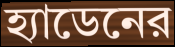
হ্যাডেনের